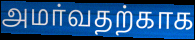
அமர்வதற்காக